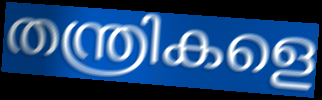
തന്ത്രികളെ